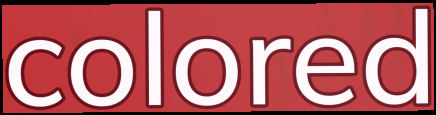
colored